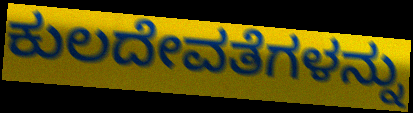
ಕುಲದೇವತೆಗಳನ್ನು